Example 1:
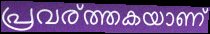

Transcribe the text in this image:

പ്രവര്ത്തകയാണ്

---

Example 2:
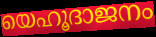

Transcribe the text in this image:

യെഹൂദാജനം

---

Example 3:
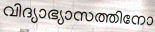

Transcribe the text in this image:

വിദ്യാഭ്യാസത്തിനോ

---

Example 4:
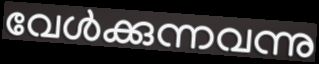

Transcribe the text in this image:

വേൾക്കുന്നവന്നു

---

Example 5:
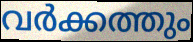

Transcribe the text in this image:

വർക്കത്തും